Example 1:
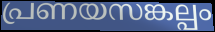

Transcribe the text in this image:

പ്രണയസങ്കല്പം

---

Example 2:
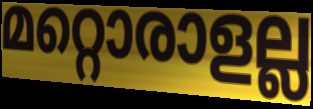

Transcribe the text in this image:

മറ്റൊരാളല്ല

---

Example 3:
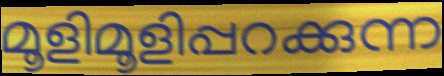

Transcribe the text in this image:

മൂളിമൂളിപ്പറക്കുന്ന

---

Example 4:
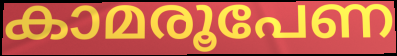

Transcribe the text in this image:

കാമരൂപേണ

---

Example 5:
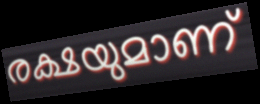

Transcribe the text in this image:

രക്ഷയുമാണ്